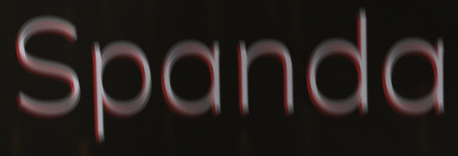
Spanda